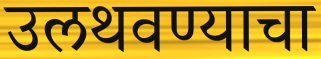
उलथवण्याचा